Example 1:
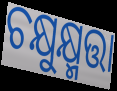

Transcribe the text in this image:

ଚକ୍ଷୁକ୍ଷ୍ମତ୍ତା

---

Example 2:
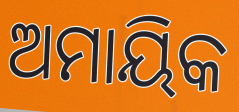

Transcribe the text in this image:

ଅମାୟିକ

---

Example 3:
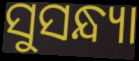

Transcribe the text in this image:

ସୁସନ୍ଧ୍ୟା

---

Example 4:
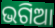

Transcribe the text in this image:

ଭଗିଆ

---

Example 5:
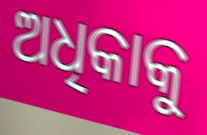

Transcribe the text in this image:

ଅଧିକାକୁ